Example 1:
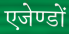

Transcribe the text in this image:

एजेण्डों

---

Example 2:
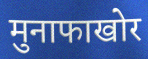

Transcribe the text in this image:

मुनाफाखोर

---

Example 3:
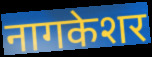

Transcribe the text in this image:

नागकेशर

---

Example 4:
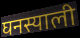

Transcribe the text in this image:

घनस्याली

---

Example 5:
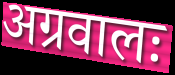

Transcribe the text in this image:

अग्रवालः